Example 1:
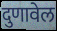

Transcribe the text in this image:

दुणावेल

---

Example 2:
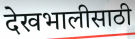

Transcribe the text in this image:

देखभालीसाठी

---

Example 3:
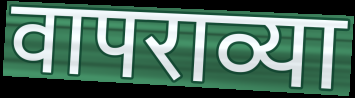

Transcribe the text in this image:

वापराव्या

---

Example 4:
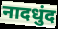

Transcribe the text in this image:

नादधुंद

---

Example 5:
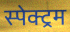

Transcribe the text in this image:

स्पेक्ट्रम